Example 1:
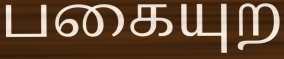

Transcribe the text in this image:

பகையுற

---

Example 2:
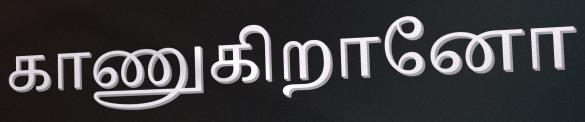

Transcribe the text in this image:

காணுகிறானோ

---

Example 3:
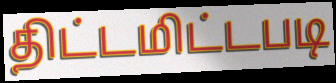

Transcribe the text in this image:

திட்டமிட்டபடி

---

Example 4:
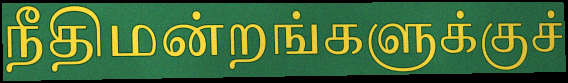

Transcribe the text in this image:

நீதிமன்றங்களுக்குச்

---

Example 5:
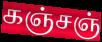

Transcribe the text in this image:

கஞ்சஞ்